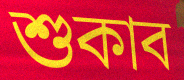
শুকাব